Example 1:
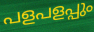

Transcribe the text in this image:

പളപളപ്പും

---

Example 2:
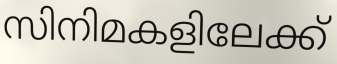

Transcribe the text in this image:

സിനിമകളിലേക്ക്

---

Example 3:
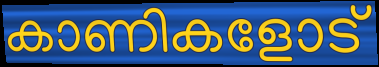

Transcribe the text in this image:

കാണികളോട്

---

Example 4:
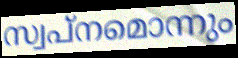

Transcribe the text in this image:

സ്വപ്നമൊന്നും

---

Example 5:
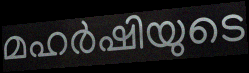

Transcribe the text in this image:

മഹർഷിയുടെ